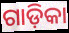
ଗାଡ଼ିକା